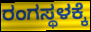
ರಂಗಸ್ಥಳಕ್ಕೆ